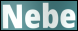
Nebe